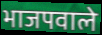
भाजपवाले